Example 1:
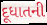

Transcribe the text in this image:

દૂધાતની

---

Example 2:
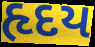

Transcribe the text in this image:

હૃદય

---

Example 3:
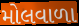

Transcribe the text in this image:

મોલવાળા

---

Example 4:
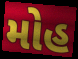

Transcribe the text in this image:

મોહ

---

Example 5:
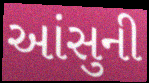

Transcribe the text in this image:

આંસુની